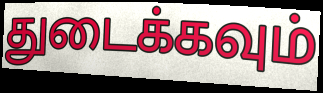
துடைக்கவும்